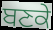
ਬਣਕੇ